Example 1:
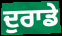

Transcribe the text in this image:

ਦੁਰਾਡੇ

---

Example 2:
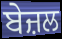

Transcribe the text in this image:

ਬੇਜ਼ਲ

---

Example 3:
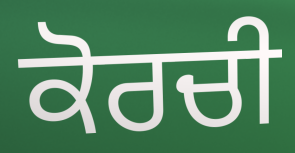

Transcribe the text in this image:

ਕੋਰਚੀ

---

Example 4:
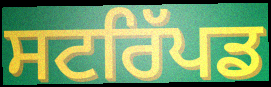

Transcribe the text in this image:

ਸਟਰਿੱਪਡ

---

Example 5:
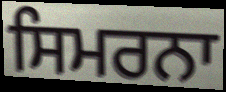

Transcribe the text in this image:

ਸਿਮਰਨਾ